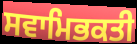
ਸਵਾਮਿਭਕਤੀ